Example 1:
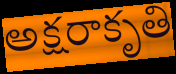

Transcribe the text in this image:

అక్షరాకృతి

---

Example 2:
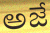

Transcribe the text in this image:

అజే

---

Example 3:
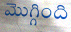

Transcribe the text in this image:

మొగ్గింది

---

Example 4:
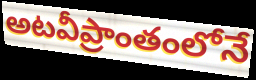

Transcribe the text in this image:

అటవీప్రాంతంలోనే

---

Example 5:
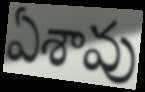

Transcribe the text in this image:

ఏశావు